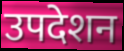
उपदेशन